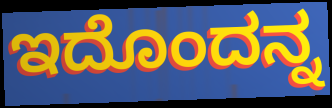
ಇದೊಂದನ್ನ